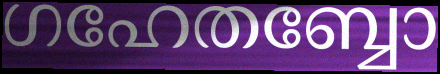
ഗഹേതബ്ബോ